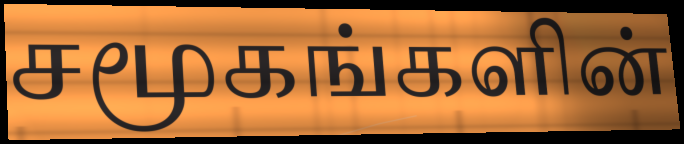
சமூகங்களின்